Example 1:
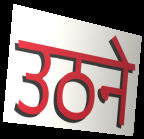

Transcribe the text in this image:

उठने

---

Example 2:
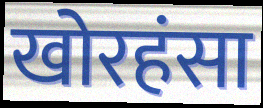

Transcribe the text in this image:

खोरहंसा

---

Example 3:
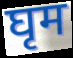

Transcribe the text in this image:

घृम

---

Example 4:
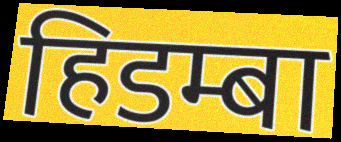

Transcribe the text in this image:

हिडम्बा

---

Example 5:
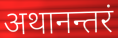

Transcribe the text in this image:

अथानन्तरं